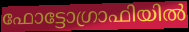
ഫോട്ടോഗ്രാഫിയിൽ